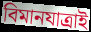
বিমানযাত্রাই